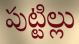
పుట్టిల్లు